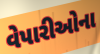
વેપારીઓના